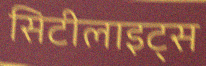
सिटीलाइट्स